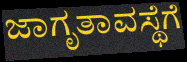
ಜಾಗೃತಾವಸ್ಥೆಗೆ